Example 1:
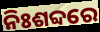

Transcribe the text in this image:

ନିଃଶବ୍ଦରେ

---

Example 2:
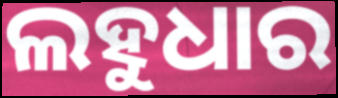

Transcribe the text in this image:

ଲହୁଧାର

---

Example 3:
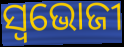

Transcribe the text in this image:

ସ୍ବଭୋଜୀ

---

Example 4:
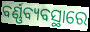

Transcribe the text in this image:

ବର୍ଣ୍ଣବ୍ୟବସ୍ଥାରେ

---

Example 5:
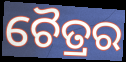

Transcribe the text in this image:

ଚୈତ୍ରର